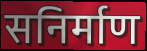
सनिर्माण